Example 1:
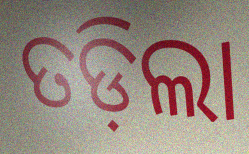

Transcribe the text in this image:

ତଡ଼ିଲା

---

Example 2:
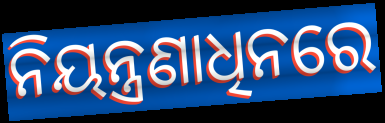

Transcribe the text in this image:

ନିୟନ୍ତ୍ରଣାଧିନରେ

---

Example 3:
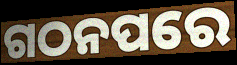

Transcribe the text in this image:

ଗଠନପରେ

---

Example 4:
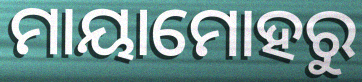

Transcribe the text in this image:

ମାୟାମୋହରୁ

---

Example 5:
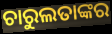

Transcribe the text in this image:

ଚାରୁଲତାଙ୍କର